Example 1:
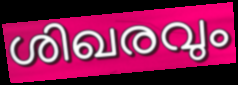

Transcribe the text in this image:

ശിഖരവും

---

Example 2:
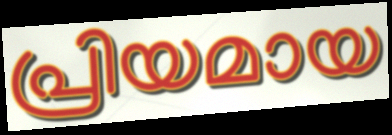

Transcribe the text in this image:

പ്രിയമായ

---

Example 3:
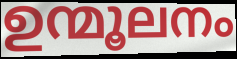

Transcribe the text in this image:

ഉന്മൂലനം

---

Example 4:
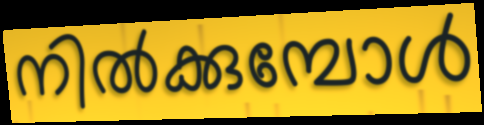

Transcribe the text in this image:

നിൽക്കുമ്പോൾ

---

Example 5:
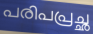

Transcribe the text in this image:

പരിപപ്രച്ഛ